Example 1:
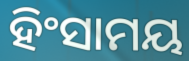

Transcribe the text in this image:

ହିଂସାମୟ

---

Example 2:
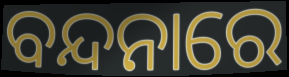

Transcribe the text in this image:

ବନ୍ଦନାରେ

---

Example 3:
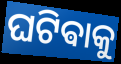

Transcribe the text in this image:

ଘଟିଵାକୁ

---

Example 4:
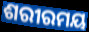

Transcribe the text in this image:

ଶରୀରମୟ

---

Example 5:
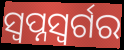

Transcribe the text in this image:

ସ୍ୱପ୍ନସ୍ୱର୍ଗର